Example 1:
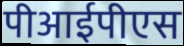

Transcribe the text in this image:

पीआईपीएस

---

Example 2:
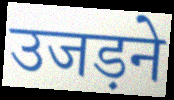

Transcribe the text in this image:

उजड़ने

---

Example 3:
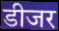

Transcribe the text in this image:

डीजर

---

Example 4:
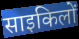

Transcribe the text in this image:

साइकिलों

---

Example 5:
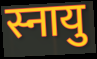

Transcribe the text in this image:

स्नायु